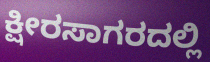
ಕ್ಷೀರಸಾಗರದಲ್ಲಿ